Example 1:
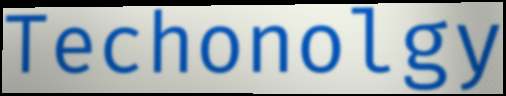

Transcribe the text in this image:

Techonolgy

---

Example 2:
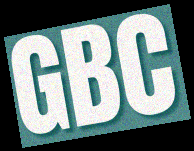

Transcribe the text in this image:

GBC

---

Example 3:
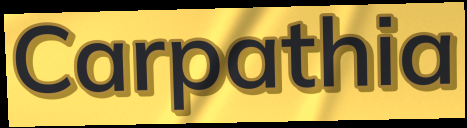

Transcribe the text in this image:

Carpathia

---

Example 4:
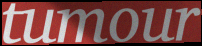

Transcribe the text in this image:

tumour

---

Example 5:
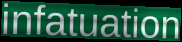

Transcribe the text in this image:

infatuation